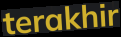
terakhir